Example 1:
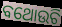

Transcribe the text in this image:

ବଥୋଉଚି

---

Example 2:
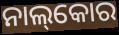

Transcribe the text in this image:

ନାଲ୍‌କୋର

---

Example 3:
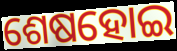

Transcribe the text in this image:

ଶେଷହୋଇ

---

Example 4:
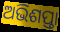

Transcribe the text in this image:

ଅଭିଶପ୍ତା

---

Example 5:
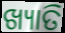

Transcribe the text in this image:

ଖ୍ଯାତି